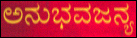
ಅನುಭವಜನ್ಯ